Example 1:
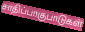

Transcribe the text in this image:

சாதிப்பாகுபாடுகள்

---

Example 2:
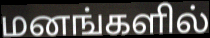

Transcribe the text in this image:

மனங்களில்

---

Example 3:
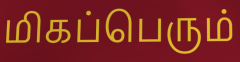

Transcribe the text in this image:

மிகப்பெரும்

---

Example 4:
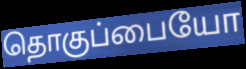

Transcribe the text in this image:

தொகுப்பையோ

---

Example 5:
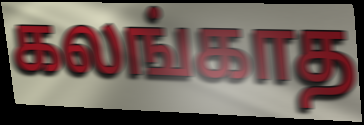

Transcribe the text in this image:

கலங்காத